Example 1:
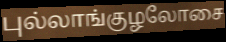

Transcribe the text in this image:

புல்லாங்குழலோசை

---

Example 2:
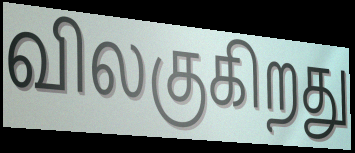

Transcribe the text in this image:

விலகுகிறது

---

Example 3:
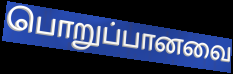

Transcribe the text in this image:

பொறுப்பானவை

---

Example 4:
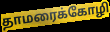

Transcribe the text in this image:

தாமரைக்கோழி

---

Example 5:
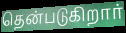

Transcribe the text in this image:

தென்படுகிறார்